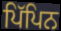
ਪਿੱਪਿਨ